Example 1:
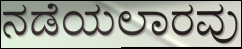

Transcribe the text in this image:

ನಡೆಯಲಾರವು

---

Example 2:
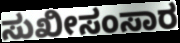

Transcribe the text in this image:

ಸುಖೀಸಂಸಾರ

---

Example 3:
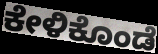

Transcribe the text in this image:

ಕೇಳಿಕೊಂಡೆ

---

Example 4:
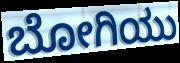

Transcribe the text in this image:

ಬೋಗಿಯು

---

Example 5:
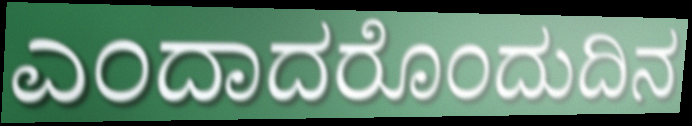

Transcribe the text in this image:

ಎಂದಾದರೊಂದುದಿನ